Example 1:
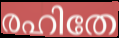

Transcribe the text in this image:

രഹിതേ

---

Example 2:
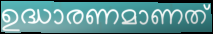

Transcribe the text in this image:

ഉദ്ധാരണമാണത്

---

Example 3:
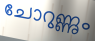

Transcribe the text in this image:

ചോറുണ്ണും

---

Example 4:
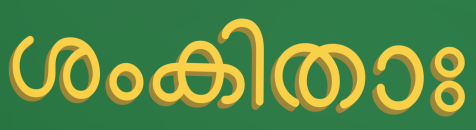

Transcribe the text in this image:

ശംകിതാഃ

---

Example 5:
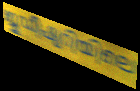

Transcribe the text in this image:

ജുഡീഷ്യറിയിലെ